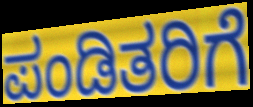
ಪಂಡಿತರಿಗೆ